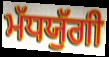
ਮੱਧਯੁੱਗੀ